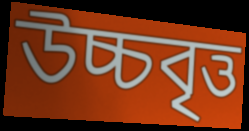
উচ্চবৃত্ত